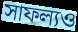
সাফল্যও